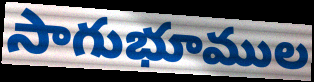
సాగుభూముల